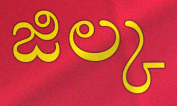
జిల్క